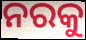
ନରକୁ